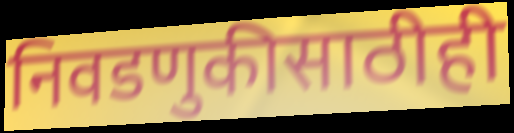
निवडणुकीसाठीही